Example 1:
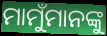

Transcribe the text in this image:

ମାମୁଁମାନଙ୍କୁ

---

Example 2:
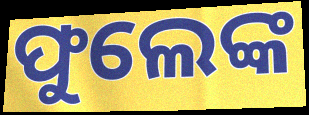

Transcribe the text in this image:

ଫୁଲେଙ୍କ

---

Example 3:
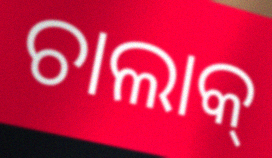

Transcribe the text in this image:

ଚାଲାକ୍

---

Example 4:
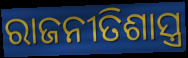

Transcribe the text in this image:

ରାଜନୀତିଶାସ୍ତ୍ର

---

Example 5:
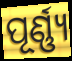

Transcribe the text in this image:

ପୂର୍ଣ୍ଣ୍ୟ